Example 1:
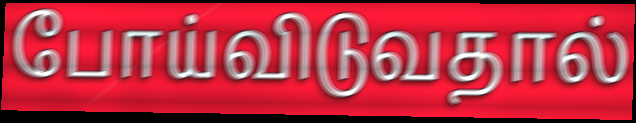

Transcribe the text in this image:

போய்விடுவதால்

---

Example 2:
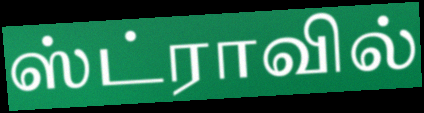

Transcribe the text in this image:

ஸ்ட்ராவில்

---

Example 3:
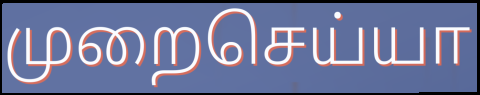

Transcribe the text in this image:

முறைசெய்யா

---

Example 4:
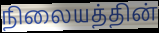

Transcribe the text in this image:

நிலையத்தின்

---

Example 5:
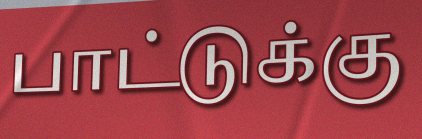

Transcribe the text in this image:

பாட்டுக்கு